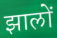
झालों